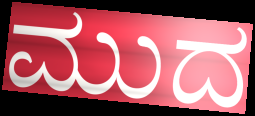
ಮುದ